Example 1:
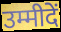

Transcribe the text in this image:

उम्‍मीदें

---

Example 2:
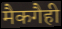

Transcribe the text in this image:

मैकगैही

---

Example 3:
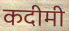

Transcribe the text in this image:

कदीमी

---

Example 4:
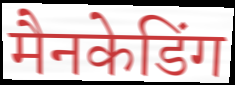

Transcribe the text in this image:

मैनकेडिंग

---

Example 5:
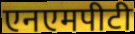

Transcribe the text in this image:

एनएमपीटी